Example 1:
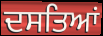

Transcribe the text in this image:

ਦਸਤਿਆਂ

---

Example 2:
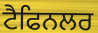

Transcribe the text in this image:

ਟੈਫਿਨਲਰ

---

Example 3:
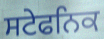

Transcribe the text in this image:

ਸਟੇਫਨਿਕ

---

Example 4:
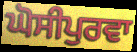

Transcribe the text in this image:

ਘੋਸੀਪੁਰਵਾ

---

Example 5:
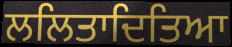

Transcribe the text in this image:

ਲਲਿਤਾਦਿਤਿਆ